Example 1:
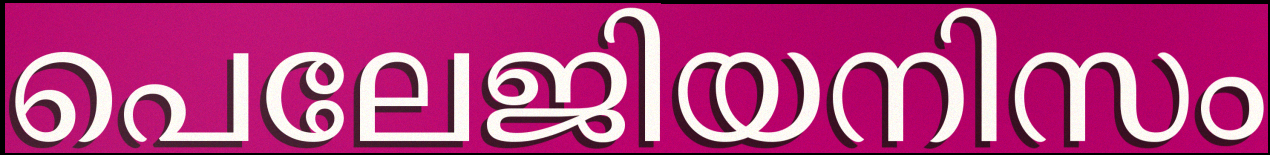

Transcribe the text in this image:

പെലേജിയനിസം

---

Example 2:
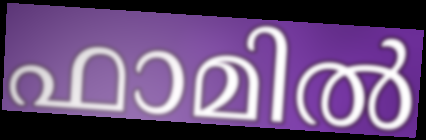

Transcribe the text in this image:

ഫാമിൽ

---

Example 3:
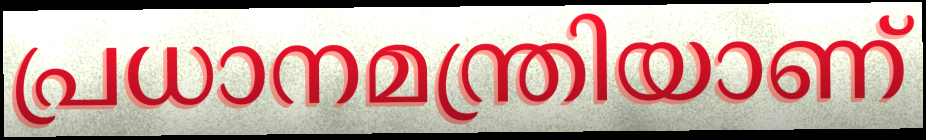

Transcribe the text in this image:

പ്രധാനമന്ത്രിയാണ്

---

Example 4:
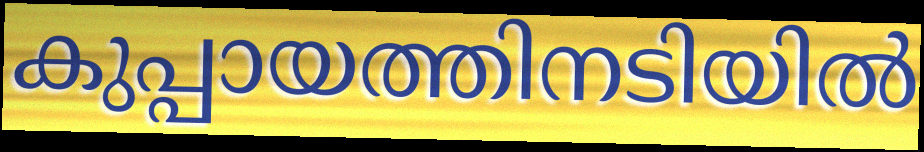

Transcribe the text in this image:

കുപ്പായത്തിനടിയിൽ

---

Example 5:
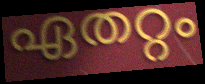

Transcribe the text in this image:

ഏതറ്റം